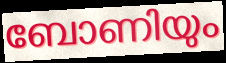
ബോണിയും